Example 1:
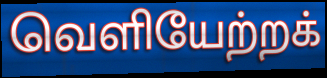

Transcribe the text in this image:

வெளியேற்றக்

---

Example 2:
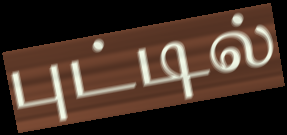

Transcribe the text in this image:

புட்டில்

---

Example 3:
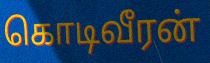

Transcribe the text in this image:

கொடிவீரன்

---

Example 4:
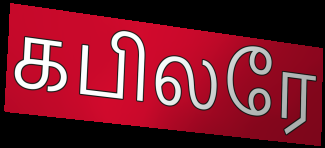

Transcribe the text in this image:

கபிலரே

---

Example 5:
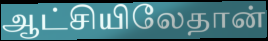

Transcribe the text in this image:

ஆட்சியிலேதான்